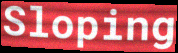
Sloping